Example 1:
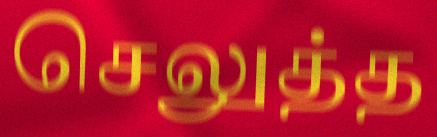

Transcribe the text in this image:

செலுத்த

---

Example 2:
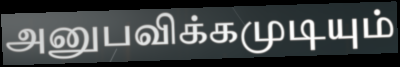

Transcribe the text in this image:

அனுபவிக்கமுடியும்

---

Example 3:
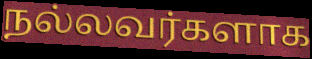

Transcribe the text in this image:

நல்லவர்களாக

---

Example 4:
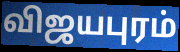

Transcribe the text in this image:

விஜயபுரம்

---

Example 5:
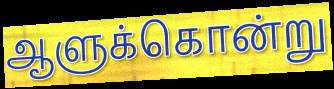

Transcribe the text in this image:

ஆளுக்கொன்று